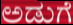
ಅಡುಗೆ